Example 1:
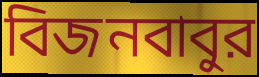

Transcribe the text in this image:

বিজনবাবুর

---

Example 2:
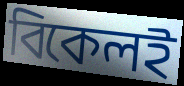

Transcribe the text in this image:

বিকেলই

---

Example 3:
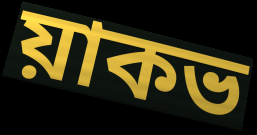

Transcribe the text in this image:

য়াকভ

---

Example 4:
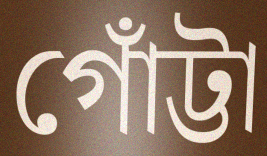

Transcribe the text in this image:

গোঁট্টা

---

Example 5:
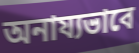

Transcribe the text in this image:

অনায্যভাবে